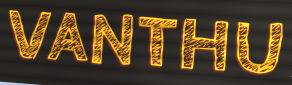
VANTHU